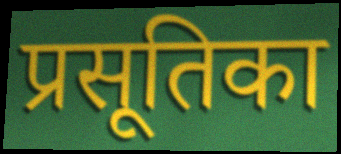
प्रसूतिका